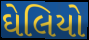
ઘેલિયો